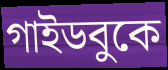
গাইডবুকে